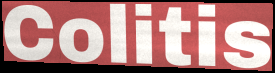
Colitis